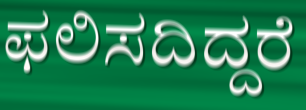
ಫಲಿಸದಿದ್ದರೆ